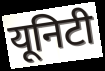
यूनिटी